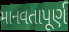
માનવતાપૂર્ણ